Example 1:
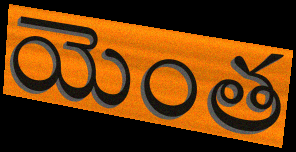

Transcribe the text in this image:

యెంత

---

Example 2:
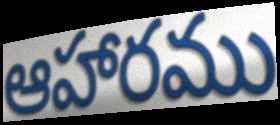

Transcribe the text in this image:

ఆహారము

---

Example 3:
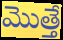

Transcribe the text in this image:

మొత్తే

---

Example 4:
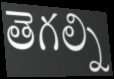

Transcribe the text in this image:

తెగల్ని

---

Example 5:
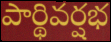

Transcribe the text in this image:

పార్థివర్షభ